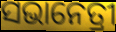
ସଭାନେତ୍ରୀ